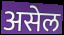
असेल